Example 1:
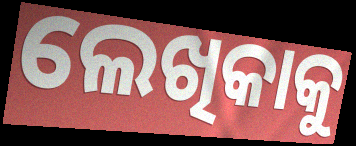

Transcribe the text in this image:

ଲେଖିକାକୁ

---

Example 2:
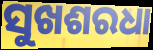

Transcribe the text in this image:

ସୁଖଶରଧା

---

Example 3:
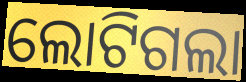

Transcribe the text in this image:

ଲୋଟିଗଲା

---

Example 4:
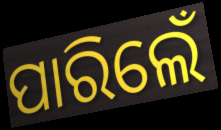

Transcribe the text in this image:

ପାରିଲେଁ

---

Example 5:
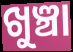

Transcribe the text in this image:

ଖୁଞ୍ଚା